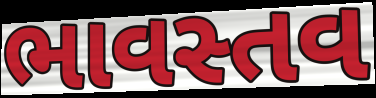
ભાવસ્તવ